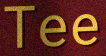
Tee